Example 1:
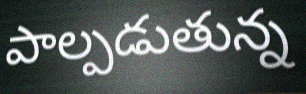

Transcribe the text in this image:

పాల్పడుతున్న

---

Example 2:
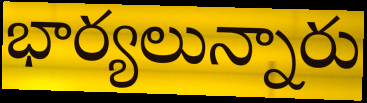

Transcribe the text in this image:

భార్యలున్నారు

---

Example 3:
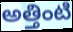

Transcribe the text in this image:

అత్తింటి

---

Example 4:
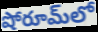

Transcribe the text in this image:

షోరూమ్‌లో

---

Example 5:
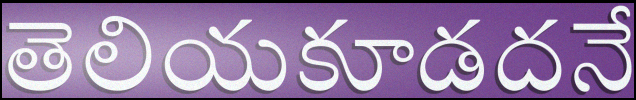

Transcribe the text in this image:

తెలియకూడదనే